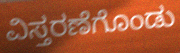
ವಿಸ್ತರಣೆಗೊಂಡು